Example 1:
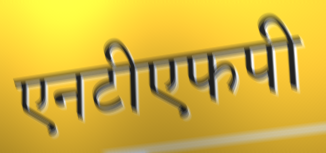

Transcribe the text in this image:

एनटीएफपी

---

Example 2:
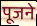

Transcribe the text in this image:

पूजने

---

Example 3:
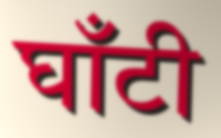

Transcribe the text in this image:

घाँटी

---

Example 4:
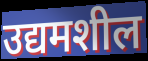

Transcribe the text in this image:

उद्यमशील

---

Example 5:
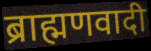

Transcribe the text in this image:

ब्राह्मणवादी